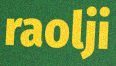
raolji